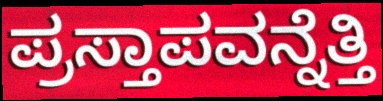
ಪ್ರಸ್ತಾಪವನ್ನೆತ್ತಿ